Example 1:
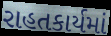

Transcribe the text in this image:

રાહતકાર્યમાં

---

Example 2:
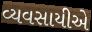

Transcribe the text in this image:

વ્યવસાયીએ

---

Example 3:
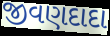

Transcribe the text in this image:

જીવણદાદા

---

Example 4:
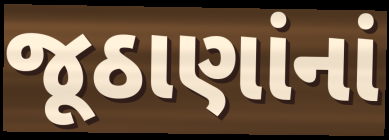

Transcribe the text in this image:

જૂઠાણાંનાં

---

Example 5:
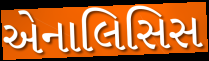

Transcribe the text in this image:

એનાલિસિસ